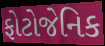
ફોટોજેનિક